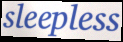
sleepless